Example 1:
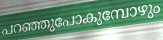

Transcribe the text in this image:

പറഞ്ഞുപോകുമ്പോഴും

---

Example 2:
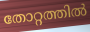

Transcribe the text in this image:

തോറ്റത്തിൽ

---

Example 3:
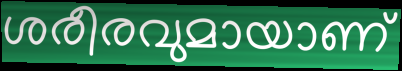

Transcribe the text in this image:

ശരീരവുമായാണ്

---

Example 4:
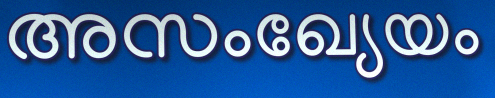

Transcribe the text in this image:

അസംഖ്യേയം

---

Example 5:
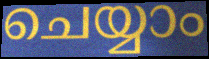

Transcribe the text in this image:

ചെയ്യാം